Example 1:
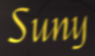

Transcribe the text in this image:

Suny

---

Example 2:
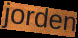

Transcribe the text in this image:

jorden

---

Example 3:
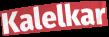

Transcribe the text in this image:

Kalelkar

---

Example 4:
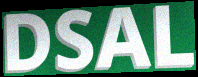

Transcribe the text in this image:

DSAL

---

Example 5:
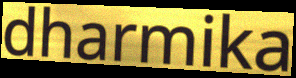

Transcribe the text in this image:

dharmika